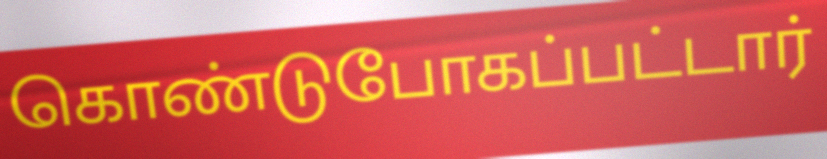
கொண்டுபோகப்பட்டார்